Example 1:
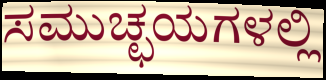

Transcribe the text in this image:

ಸಮುಚ್ಛಯಗಳಲ್ಲಿ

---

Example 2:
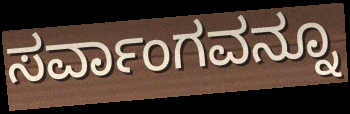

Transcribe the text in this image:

ಸರ್ವಾಂಗವನ್ನೂ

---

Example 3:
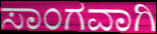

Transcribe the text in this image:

ಸಾಂಗವಾಗಿ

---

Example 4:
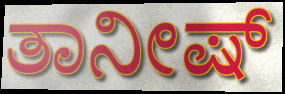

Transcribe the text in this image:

ತಾನೀಷ್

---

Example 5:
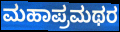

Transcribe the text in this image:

ಮಹಾಪ್ರಮಥರ